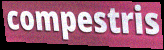
compestris